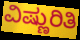
ವಿಷ್ಣುರಿತಿ